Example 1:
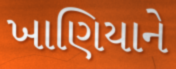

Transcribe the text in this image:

ખાણિયાને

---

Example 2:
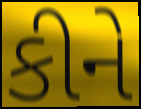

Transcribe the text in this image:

કીને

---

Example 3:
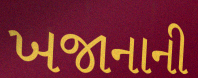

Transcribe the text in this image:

ખજાનાની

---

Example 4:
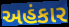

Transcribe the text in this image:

અહંકાર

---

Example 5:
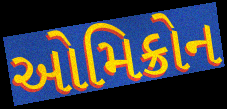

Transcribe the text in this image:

ઓમિક્રોન